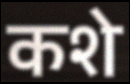
कशे